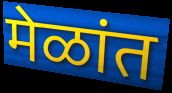
मेळांत